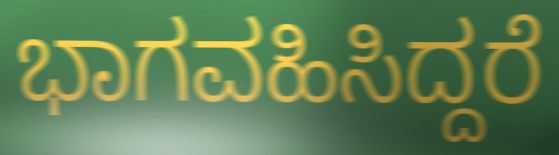
ಭಾಗವಹಿಸಿದ್ದರೆ